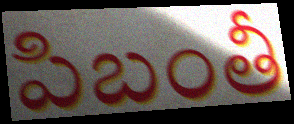
పిబంతీ